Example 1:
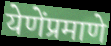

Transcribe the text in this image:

येणेंप्रमाणे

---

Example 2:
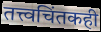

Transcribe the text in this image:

तत्त्वचिंतकही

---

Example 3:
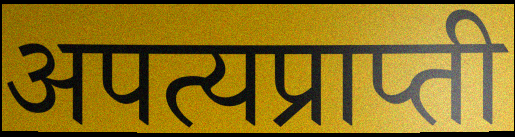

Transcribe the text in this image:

अपत्यप्राप्ती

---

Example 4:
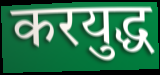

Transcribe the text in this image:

करयुद्ध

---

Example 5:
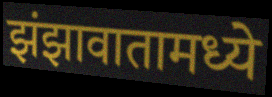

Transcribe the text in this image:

झंझावातामध्ये